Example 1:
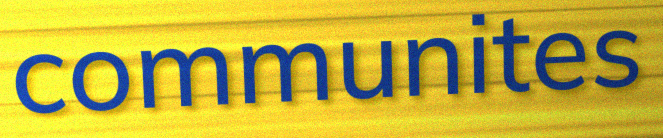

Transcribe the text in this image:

communites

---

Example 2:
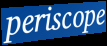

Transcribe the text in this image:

periscope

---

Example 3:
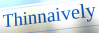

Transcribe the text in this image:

Thinnaively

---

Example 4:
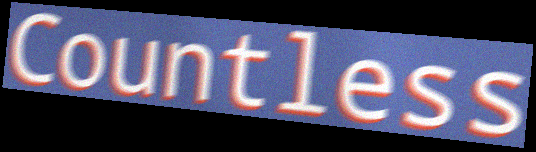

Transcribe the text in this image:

Countless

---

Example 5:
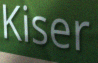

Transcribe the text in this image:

Kiser